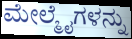
ಮೇಲ್ಮೈಗಳನ್ನು